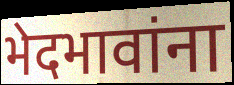
भेदभावांना